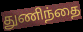
துணிந்தை